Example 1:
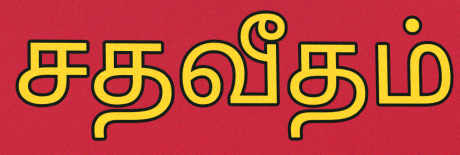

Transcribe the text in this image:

சதவீதம்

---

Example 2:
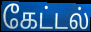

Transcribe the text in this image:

கேட்டல்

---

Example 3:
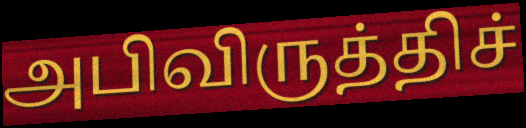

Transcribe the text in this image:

அபிவிருத்திச்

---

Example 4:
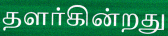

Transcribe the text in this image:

தளர்கின்றது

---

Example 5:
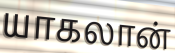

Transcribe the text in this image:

யாகலான்